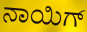
ನಾಯಿಗ್